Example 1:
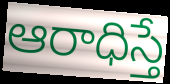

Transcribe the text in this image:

ఆరాధిస్తే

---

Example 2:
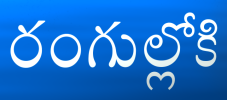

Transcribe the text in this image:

రంగుల్లోకి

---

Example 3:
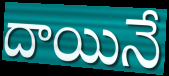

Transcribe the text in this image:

దాయినే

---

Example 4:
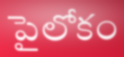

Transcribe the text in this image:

పైలోకం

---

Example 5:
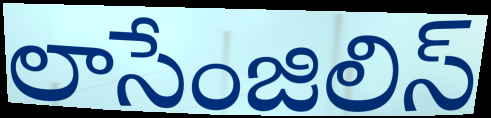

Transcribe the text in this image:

లాసేంజిలిస్